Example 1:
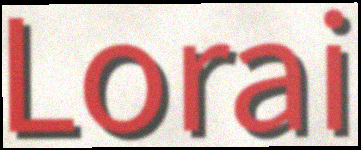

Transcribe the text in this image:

Lorai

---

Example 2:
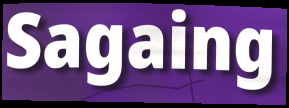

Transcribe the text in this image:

Sagaing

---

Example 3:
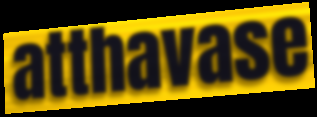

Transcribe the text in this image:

atthavase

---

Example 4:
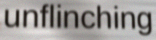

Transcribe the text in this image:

unflinching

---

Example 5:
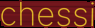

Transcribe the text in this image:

chessi